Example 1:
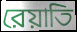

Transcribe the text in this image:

রেয়াতি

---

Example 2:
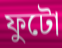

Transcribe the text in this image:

ফুটো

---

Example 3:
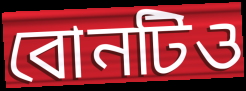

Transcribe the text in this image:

বোনটিও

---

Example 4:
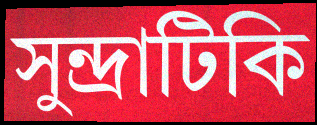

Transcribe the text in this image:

সুন্দ্রাটিকি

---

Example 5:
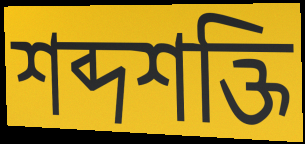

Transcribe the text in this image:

শব্দশক্তি